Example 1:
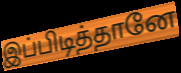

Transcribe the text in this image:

இப்பிடித்தானே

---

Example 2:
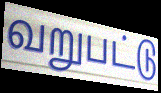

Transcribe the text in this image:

வறுபட்டு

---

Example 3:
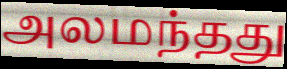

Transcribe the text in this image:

அலமந்தது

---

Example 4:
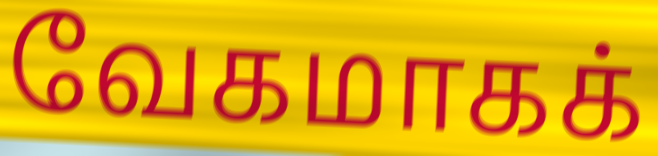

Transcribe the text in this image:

வேகமாகக்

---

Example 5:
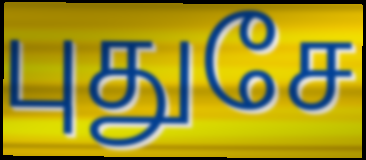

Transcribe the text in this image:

புதுசே